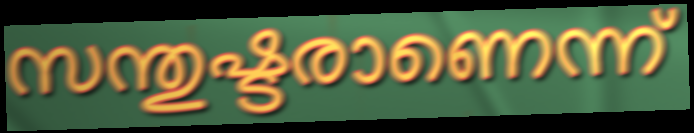
സന്തുഷ്ടരാണെന്ന്